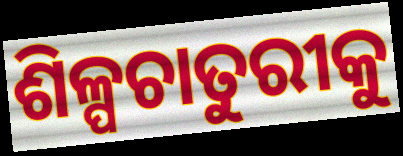
ଶିଳ୍ପଚାତୁରୀକୁ